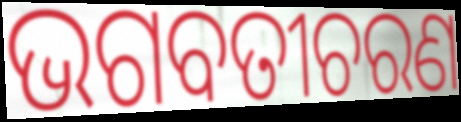
ଭଗବତୀଚରଣ